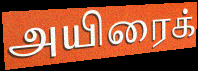
அயிரைக்